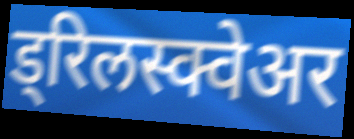
ड्रिलस्क्वेअर